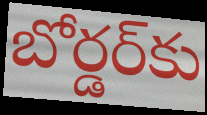
బోర్డర్‌కు